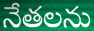
నేతలను